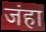
जंहा